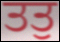
ਤਤੁ